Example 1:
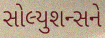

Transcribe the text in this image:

સોલ્યુશન્સને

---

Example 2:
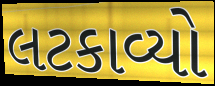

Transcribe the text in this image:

લટકાવ્યો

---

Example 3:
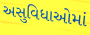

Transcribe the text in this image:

અસુવિધાઓમાં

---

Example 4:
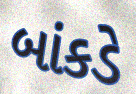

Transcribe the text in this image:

બાંકડે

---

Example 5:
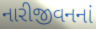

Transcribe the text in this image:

નારીજીવનનાં